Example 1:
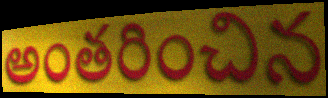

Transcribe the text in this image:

అంతరించిన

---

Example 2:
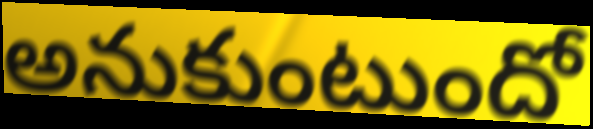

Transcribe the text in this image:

అనుకుంటుందో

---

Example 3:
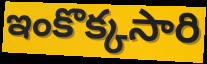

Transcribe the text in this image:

ఇంకొక్కసారి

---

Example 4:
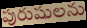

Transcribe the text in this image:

పురుషులను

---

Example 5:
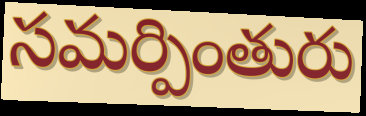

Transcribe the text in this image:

సమర్పింతురు